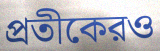
প্রতীকেরও